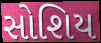
સોશિય